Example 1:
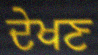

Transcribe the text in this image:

ਦੇਖਣ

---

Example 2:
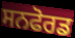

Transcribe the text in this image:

ਸਨਫੋਰਡ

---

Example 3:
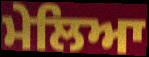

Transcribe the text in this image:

ਮੇਲਿਆ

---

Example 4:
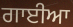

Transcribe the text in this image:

ਗਾਈਆ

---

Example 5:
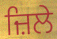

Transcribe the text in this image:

ਜ਼ਿਲੇ